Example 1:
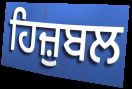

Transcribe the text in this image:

ਹਿਜ਼ੁਬਲ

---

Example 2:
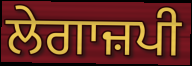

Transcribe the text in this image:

ਲੇਗਾਜ਼ਪੀ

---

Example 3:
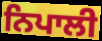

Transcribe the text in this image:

ਨਿਪਾਲੀ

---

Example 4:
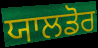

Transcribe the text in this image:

ਯਾਲਡੋਰ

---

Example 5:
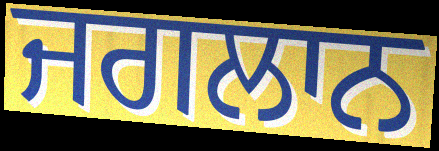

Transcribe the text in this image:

ਜਗਲਾਨ